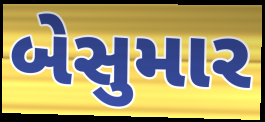
બેસુમાર